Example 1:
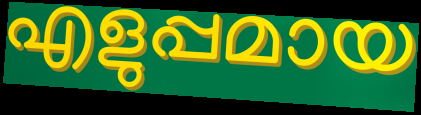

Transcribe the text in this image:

എളുപ്പമായ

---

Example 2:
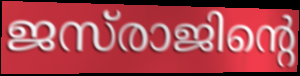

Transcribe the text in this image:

ജസ്‌രാജിന്റെ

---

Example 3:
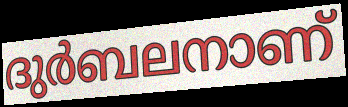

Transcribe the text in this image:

ദുർബലനാണ്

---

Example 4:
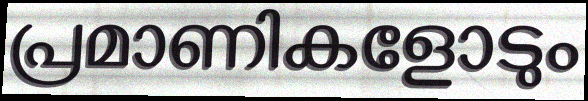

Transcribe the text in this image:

പ്രമാണികളോടും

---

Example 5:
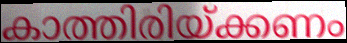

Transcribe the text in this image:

കാത്തിരിയ്ക്കണം